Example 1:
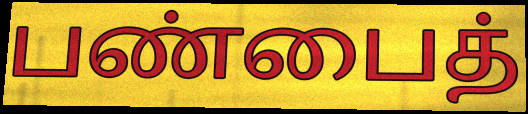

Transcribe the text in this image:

பண்பைத்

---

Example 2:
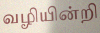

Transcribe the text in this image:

வழியின்றி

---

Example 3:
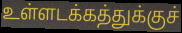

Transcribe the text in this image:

உள்ளடக்கத்துக்குச்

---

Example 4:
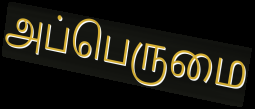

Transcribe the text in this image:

அப்பெருமை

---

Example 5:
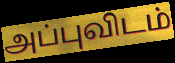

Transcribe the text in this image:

அப்புவிடம்